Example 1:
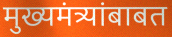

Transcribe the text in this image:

मुख्यमंत्र्यांबाबत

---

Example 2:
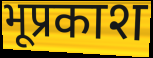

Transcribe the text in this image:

भूप्रकाश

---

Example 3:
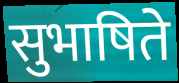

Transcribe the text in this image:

सुभाषिते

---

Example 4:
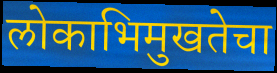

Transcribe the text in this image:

लोकाभिमुखतेचा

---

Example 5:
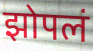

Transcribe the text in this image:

झोपलं